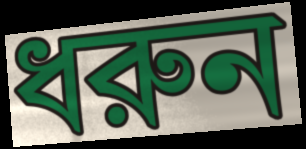
ধরুন